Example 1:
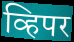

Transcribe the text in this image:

व्हिपर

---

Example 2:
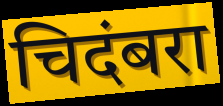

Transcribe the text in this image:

चिदंबरा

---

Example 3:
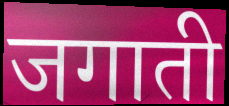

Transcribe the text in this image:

जगाती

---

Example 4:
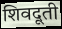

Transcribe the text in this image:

शिवदूती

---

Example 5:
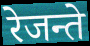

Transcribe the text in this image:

रेजन्ते